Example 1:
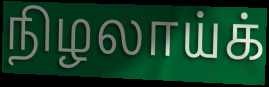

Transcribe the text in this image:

நிழலாய்க்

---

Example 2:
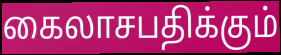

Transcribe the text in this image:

கைலாசபதிக்கும்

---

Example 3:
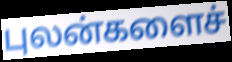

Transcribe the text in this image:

புலன்களைச்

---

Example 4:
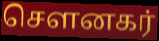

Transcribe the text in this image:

சௌனகர்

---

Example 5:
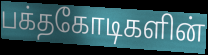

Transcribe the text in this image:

பக்தகோடிகளின்